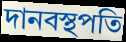
দানবস্থপতি